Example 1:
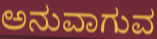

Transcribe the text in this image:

ಅನುವಾಗುವ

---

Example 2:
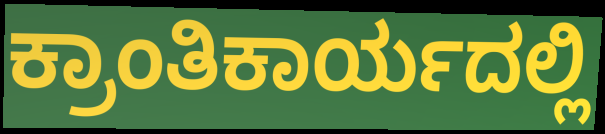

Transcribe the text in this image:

ಕ್ರಾಂತಿಕಾರ್ಯದಲ್ಲಿ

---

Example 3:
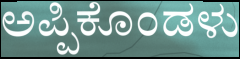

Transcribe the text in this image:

ಅಪ್ಪಿಕೊಂಡಳು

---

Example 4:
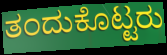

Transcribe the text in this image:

ತಂದುಕೊಟ್ಟರು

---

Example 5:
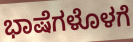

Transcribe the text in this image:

ಭಾಷೆಗಳೊಳಗೆ